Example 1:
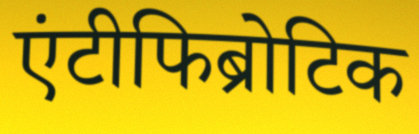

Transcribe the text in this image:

एंटीफिब्रोटिक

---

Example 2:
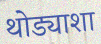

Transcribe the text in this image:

थोड्याशा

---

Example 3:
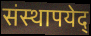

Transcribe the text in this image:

संस्थापयेद्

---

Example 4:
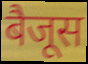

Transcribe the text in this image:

बैजूस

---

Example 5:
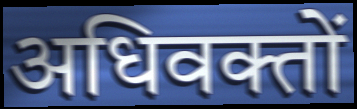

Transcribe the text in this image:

अधिवक्तों